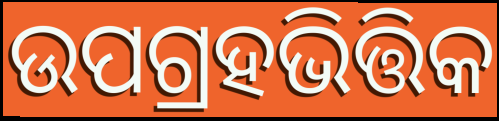
ଉପଗ୍ରହଭିତ୍ତିକ